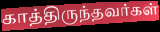
காத்திருந்தவர்கள்